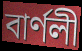
বাৰ্ণলী